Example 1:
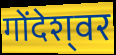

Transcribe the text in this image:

गोंदेश्वर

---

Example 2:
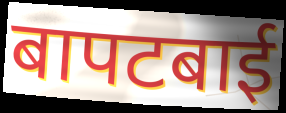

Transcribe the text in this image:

बापटबाई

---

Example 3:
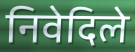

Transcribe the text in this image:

निवेदिले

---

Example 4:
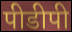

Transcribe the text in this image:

पीडीपी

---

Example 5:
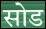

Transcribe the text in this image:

सोड